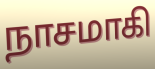
நாசமாகி